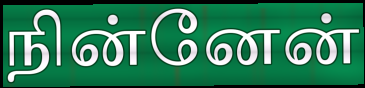
நின்னேன்